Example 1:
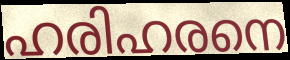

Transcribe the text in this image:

ഹരിഹരനെ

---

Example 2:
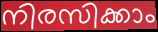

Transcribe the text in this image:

നിരസിക്കാം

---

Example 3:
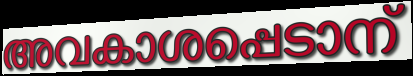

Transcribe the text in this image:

അവകാശപ്പെടാന്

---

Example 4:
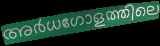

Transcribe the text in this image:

അർധഗോളത്തിലെ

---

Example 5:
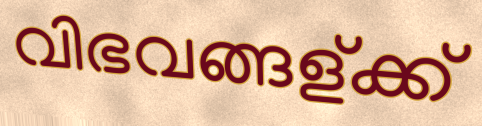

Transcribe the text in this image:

വിഭവങ്ങള്ക്ക്